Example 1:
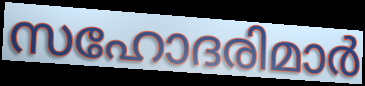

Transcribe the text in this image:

സഹോദരിമാർ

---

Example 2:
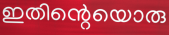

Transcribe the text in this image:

ഇതിന്റെയൊരു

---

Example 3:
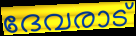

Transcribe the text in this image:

ദേവരാട്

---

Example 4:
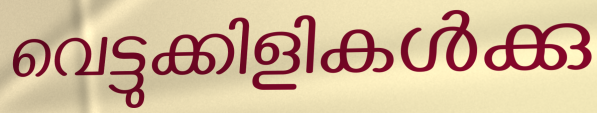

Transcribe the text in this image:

വെട്ടുക്കിളികൾക്കു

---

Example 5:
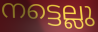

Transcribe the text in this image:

നട്ടെല്ലു